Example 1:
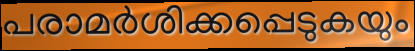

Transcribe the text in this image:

പരാമർശിക്കപ്പെടുകയും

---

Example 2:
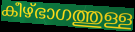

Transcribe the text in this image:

കീഴ്ഭാഗത്തുള്ള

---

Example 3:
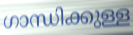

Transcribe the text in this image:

ഗാന്ധിക്കുള്ള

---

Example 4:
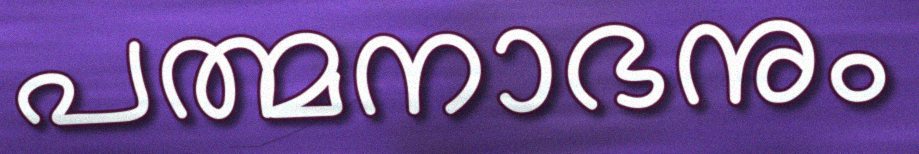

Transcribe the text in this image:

പത്മനാഭനും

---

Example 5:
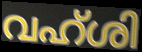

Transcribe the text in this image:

വഹ്ശി